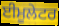
ਈਮੂਲੇਟਰ